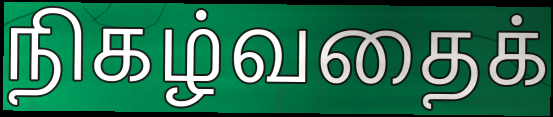
நிகழ்வதைக்